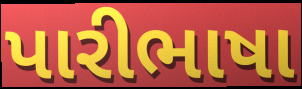
પારીભાષા